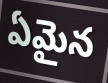
ఏమైన